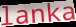
lanka